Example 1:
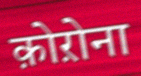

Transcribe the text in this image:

क़ोऱोना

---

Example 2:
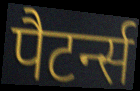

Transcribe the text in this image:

पैटर्न्स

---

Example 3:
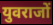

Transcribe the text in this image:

युवराजों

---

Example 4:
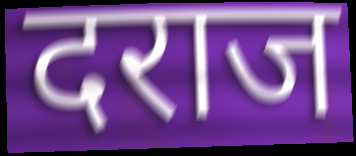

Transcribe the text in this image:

दराज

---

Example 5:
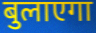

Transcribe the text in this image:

बुलाएगा